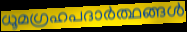
ധൂമഗ്രഹപദാർത്ഥങ്ങൾ